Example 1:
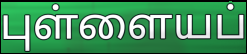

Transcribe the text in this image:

புள்ளையப்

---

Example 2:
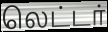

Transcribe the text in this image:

லெட்டர்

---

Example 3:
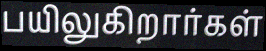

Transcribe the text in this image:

பயிலுகிறார்கள்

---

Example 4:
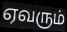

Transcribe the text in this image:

ஏவரும்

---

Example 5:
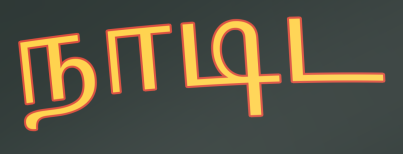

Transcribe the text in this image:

நாடிட